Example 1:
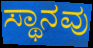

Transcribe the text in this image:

ಸ್ಥಾನವು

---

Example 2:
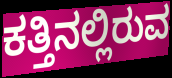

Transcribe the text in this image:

ಕತ್ತಿನಲ್ಲಿರುವ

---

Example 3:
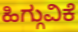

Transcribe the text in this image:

ಹಿಗ್ಗುವಿಕೆ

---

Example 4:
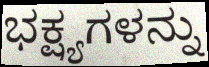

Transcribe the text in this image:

ಭಕ್ಷ್ಯಗಳನ್ನು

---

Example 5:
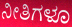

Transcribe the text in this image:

ನೀತಿಗಳೂ